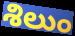
శిలుం